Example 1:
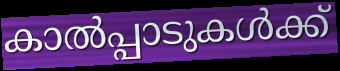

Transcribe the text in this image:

കാൽപ്പാടുകൾക്ക്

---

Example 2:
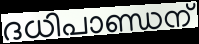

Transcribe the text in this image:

ദധിപാണ്ഡന്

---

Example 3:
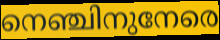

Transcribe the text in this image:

നെഞ്ചിനുനേരെ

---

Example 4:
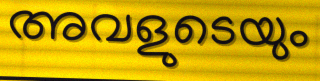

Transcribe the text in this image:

അവളുടെയും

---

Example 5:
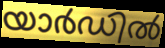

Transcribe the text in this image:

യാർഡിൽ